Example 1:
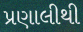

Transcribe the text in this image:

પ્રણાલીથી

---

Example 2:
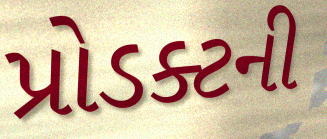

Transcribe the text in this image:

પ્રોડક્ટની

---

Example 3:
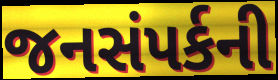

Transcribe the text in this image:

જનસંપર્કની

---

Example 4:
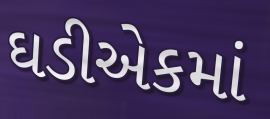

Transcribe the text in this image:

ઘડીએકમાં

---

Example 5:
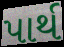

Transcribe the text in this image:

પાર્થ